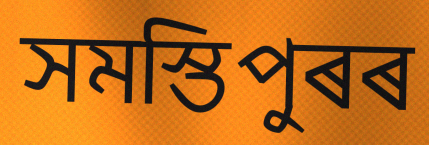
সমস্তিপুৰৰ